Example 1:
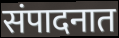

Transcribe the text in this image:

संपादनात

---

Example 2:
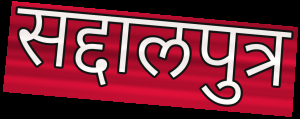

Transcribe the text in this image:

सद्दालपुत्र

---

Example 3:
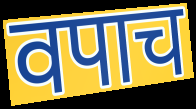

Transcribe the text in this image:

वपाच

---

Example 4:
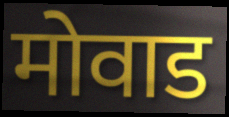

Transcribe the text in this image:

मोवाड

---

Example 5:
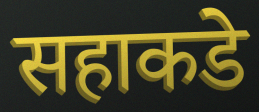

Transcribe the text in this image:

सहाकडे